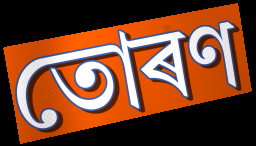
তোৰণ